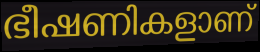
ഭീഷണികളാണ്